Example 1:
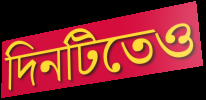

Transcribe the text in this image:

দিনটিতেও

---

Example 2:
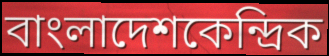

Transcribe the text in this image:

বাংলাদেশকেন্দ্রিক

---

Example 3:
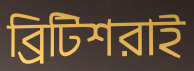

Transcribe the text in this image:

ব্রিটিশরাই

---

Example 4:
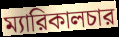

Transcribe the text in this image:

ম্যারিকালচার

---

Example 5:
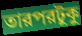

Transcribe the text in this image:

তারপরটুকু